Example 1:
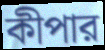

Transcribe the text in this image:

কীপার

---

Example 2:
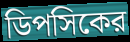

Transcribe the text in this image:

ডিপসিকের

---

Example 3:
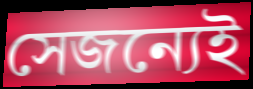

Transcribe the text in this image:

সেজন্যেই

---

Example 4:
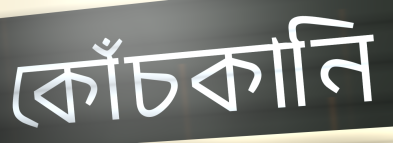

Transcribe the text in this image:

কোঁচকানি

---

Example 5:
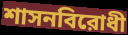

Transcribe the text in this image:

শাসনবিরোধী